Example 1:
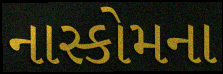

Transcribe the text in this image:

નાસ્કોમના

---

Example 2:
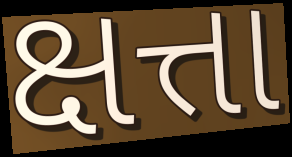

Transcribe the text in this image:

ક્ષત્તા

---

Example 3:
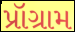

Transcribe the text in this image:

પ્રૉગ્રામ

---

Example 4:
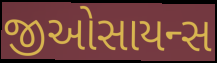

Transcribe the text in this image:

જીઓસાયન્સ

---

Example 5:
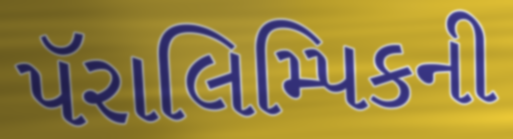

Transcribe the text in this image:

પૅરાલિમ્પિકની